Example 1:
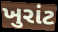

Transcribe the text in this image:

ખુરાંટ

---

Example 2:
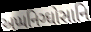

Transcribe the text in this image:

અપ્પનિગ્ઘોસાનિ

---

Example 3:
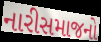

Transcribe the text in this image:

નારીસમાજનો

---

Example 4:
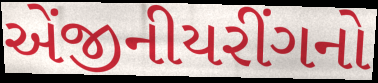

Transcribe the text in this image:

એંજીનીયરીંગનો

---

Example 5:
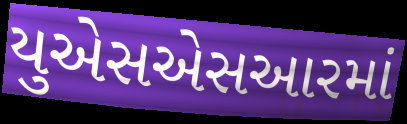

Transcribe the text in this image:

યુએસએસઆરમાં